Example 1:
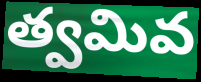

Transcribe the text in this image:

త్వమివ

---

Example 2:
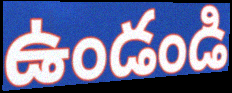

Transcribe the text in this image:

ఉండండి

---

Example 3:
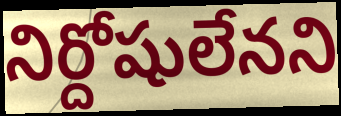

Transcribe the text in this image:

నిర్దోషులేనని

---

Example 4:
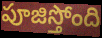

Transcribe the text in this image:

పూజిస్తోంది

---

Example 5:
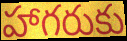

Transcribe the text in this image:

హాగరుకు